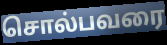
சொல்பவரை